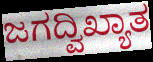
ಜಗದ್ವಿಖ್ಯಾತ